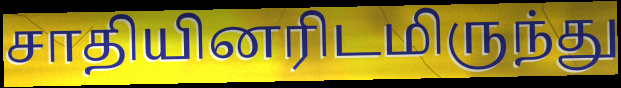
சாதியினரிடமிருந்து